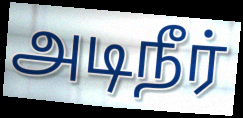
அடிநீர்